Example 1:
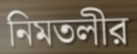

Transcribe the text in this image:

নিমতলীর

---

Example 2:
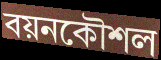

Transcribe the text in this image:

বয়নকৌশল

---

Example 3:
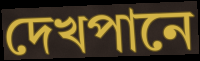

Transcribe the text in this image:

দেখপানে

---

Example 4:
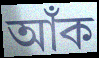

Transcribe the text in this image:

আঁক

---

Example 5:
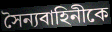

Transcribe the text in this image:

সৈন্যবাহিনীকে